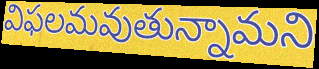
విఫలమవుతున్నామని